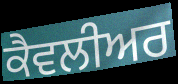
ਕੈਵਲੀਅਰ